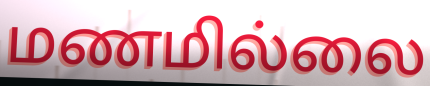
மணமில்லை